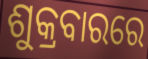
ଶୁକ୍ରବାରରେ